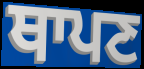
ਥਾਪਣ